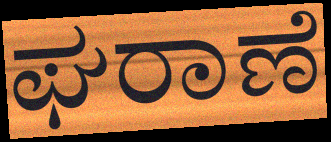
ಘರಾಣೆ